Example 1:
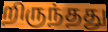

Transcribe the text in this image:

றிருந்தது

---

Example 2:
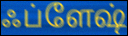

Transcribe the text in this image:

ஃப்ளேஷ்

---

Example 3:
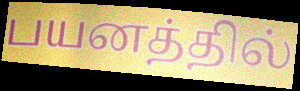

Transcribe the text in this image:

பயனத்தில்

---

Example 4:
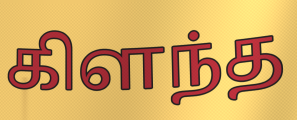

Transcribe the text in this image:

கிளந்த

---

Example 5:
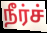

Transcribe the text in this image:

நீர்ச்